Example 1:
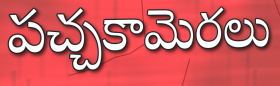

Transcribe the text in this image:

పచ్చకామెరలు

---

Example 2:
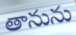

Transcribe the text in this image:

తానును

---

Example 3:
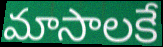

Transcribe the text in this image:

మాసాలకే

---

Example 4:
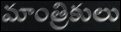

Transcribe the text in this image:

మాంత్రికులు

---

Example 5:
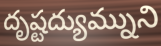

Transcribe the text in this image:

దృష్టద్యుమ్నుని